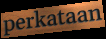
perkataan